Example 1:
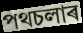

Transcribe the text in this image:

পথচলাৰ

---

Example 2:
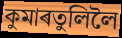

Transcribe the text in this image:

কুমাৰতুলিলৈ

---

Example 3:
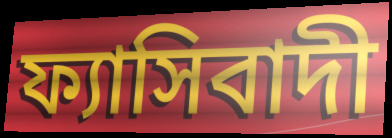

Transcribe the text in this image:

ফ্যাসিবাদী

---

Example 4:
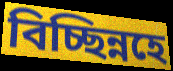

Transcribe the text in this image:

বিচ্ছিন্নহে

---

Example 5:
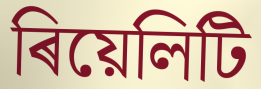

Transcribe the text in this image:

ৰিয়েলিটি